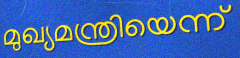
മുഖ്യമന്ത്രിയെന്ന്